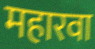
महारवा